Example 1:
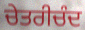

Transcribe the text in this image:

ਚੇਤਰੀਚੰਦ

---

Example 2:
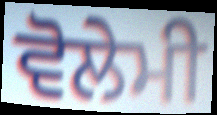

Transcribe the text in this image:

ਵੋਲੇਮੀ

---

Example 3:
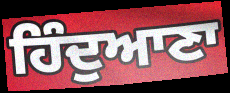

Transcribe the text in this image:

ਹਿੰਦੁਆਣਾ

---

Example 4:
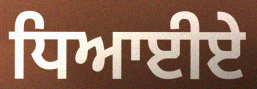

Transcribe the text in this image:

ਧਿਆਈਏ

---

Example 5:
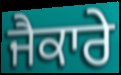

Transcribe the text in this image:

ਜੈਕਾਰੇ